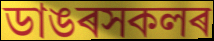
ডাঙৰসকলৰ